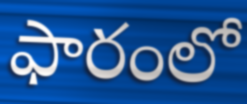
ఫారంలో